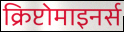
क्रिप्टोमाइनर्स